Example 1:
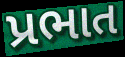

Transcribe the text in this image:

પ્રભાત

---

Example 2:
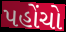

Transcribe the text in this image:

પહોંચો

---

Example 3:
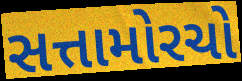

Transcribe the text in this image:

સત્તામોરચો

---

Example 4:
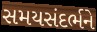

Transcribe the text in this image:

સમયસંદર્ભને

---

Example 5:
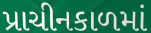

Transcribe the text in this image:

પ્રાચીનકાળમાં